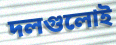
দলগুলোই